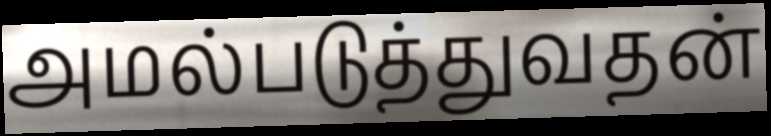
அமல்படுத்துவதன்